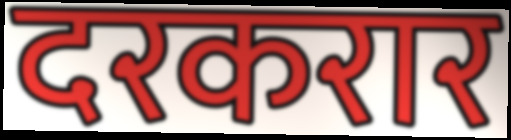
दरकरार